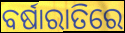
ବର୍ଷାରାତିରେ